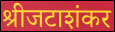
श्रीजटाशंकर